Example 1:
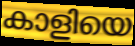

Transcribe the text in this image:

കാളിയെ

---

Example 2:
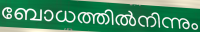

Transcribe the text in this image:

ബോധത്തിൽനിന്നും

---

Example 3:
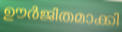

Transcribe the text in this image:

ഊർജിതമാക്കി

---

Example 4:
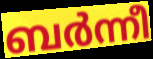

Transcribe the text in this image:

ബർന്നീ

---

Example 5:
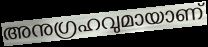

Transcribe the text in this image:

അനുഗ്രഹവുമായാണ്